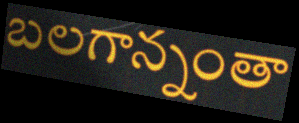
బలగాన్నంతా